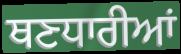
ਥਣਧਾਰੀਆਂ